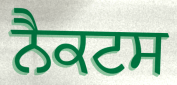
ਨੈਕਟਸ